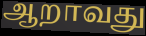
ஆறாவது